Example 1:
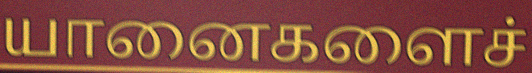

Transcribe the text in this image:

யானைகளைச்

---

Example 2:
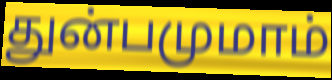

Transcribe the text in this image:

துன்பமுமாம்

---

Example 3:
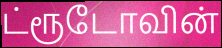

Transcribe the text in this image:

ட்ரூடோவின்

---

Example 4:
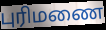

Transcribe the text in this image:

புரிமணை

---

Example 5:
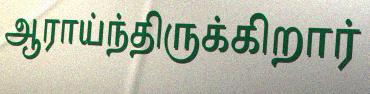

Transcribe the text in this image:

ஆராய்ந்திருக்கிறார்